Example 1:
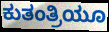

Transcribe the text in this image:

ಕುತಂತ್ರಿಯೂ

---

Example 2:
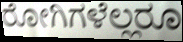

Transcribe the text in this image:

ರೋಗಿಗಳೆಲ್ಲರೂ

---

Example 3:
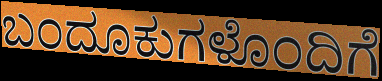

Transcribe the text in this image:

ಬಂದೂಕುಗಳೊಂದಿಗೆ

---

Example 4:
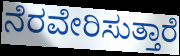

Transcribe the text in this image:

ನೆರವೇರಿಸುತ್ತಾರೆ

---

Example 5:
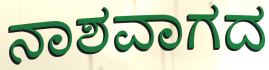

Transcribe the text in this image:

ನಾಶವಾಗದ